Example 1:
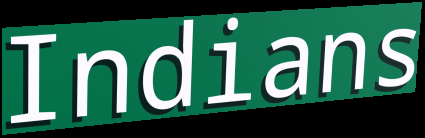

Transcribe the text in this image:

Indians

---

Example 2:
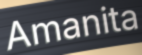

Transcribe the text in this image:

Amanita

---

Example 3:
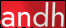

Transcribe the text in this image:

andh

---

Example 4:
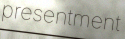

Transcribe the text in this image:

presentment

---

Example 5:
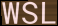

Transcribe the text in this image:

WSL